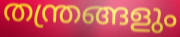
തന്ത്രങ്ങളും